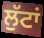
ਲੁੱਟਾਂ